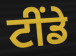
ਟੀਂਡੇ